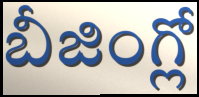
బీజింగ్లో